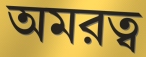
অমরত্ব